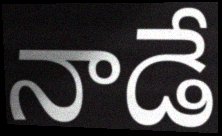
నాడే